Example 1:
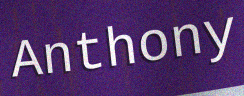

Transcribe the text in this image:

Anthony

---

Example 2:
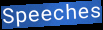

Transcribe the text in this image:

Speeches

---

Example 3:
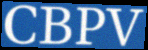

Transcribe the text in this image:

CBPV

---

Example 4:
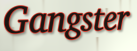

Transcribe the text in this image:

Gangster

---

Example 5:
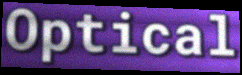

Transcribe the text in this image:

Optical